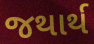
જથાર્થ